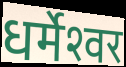
धर्मेश्वर